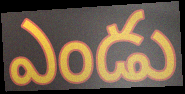
ఎండు